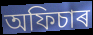
অফিচাৰ